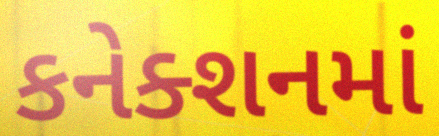
કનેક્શનમાં